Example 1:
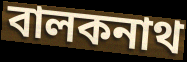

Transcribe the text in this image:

বালকনাথ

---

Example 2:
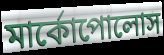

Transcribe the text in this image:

মার্কোপোলোস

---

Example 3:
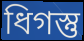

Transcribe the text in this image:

ধিগস্তু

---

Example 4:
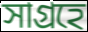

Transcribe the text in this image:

সাগ্রহে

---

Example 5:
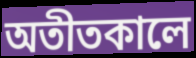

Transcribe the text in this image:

অতীতকালে